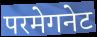
परमेगनेट